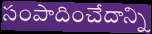
సంపాదించేదాన్ని